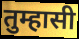
तुम्हासी